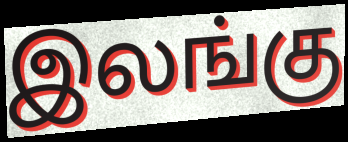
இலங்கு